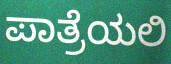
ಪಾತ್ರೆಯಲಿ